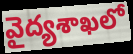
వైద్యశాఖలో